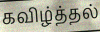
கவிழ்த்தல்